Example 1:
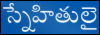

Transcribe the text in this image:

స్నేహితులై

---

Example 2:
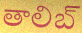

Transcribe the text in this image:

తాలిబ్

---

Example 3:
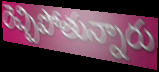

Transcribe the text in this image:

రెచ్చిపోతున్నారు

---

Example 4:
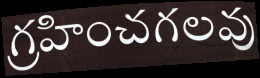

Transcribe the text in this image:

గ్రహించగలవు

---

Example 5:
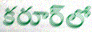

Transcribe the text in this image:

కరూర్‌లో